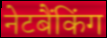
नेटबैंकिंग